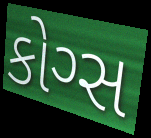
કોગ્સ